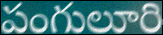
పంగులూరి